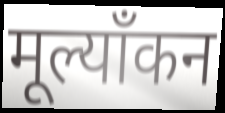
मूल्याँकन